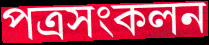
পত্রসংকলন